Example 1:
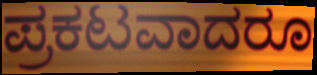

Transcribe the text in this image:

ಪ್ರಕಟವಾದರೂ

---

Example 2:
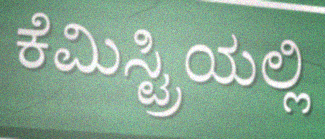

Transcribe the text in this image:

ಕೆಮಿಸ್ಟ್ರಿಯಲ್ಲಿ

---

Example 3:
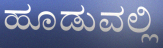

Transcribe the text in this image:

ಹೂಡುವಲ್ಲಿ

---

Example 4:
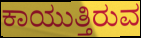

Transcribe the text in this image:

ಕಾಯುತ್ತಿರುವ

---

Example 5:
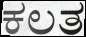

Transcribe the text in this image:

ಕಲತ